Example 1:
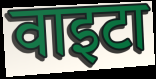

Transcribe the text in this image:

वाइटा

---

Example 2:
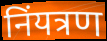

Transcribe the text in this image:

निंयत्रण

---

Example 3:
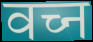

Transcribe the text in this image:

वच्न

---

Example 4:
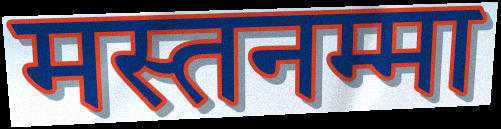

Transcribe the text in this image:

मस्तनम्मा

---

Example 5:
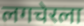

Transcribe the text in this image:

लगचेरला